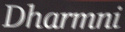
Dharmni